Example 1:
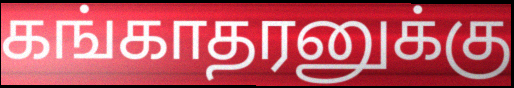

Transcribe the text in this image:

கங்காதரனுக்கு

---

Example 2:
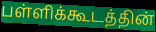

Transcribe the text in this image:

பள்ளிக்கூடத்தின்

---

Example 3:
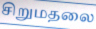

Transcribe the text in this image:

சிறுமதலை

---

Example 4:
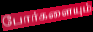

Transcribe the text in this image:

போர்களையும்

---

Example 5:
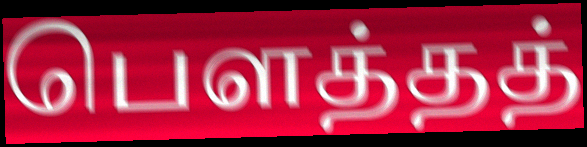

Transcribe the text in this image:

பௌத்தத்